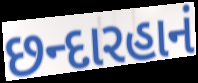
છન્દારહાનં